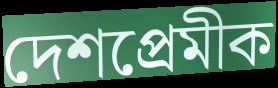
দেশপ্রেমীক